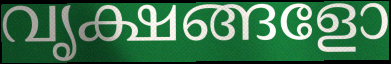
വൃക്ഷങ്ങളോ